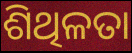
ଶିଥିଳତା